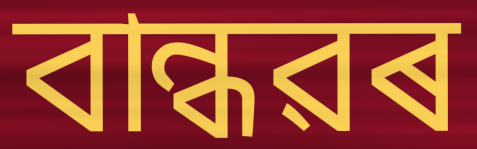
বান্ধৱৰ